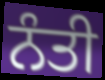
ਨੰਤੀ